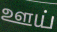
ஊய்